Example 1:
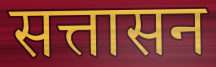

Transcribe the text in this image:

सत्तासन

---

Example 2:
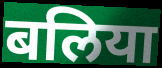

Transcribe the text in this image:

बलिया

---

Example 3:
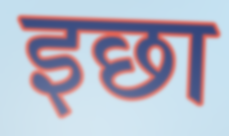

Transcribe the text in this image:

इछा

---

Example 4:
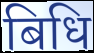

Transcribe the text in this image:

बिधि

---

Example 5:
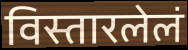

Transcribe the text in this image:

विस्तारलेलं